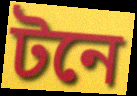
টনে